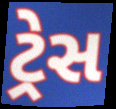
ટ્રેસ